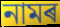
নামৰ